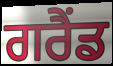
ਗਰੈਂਡ